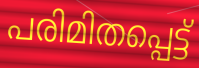
പരിമിതപ്പെട്ട്